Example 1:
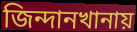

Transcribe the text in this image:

জিন্দানখানায়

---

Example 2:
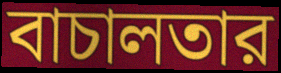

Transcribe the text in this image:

বাচালতার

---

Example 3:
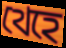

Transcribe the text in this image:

থেহে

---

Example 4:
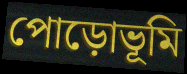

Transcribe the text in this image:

পোড়োভূমি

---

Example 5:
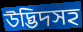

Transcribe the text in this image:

উদ্ভিদসহ